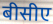
बीसीए